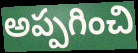
అప్పగించి